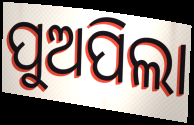
ପୁଅପିଲା